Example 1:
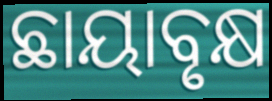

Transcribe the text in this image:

ଛାୟାବୃକ୍ଷ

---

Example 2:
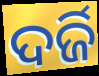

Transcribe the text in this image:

ଦର୍ଜି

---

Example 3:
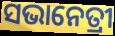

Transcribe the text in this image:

ସଭାନେତ୍ରୀ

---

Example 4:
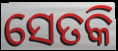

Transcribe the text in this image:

ସେତକି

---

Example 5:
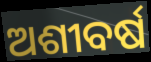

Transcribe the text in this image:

ଅଶୀବର୍ଷ